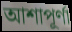
আশাপূর্ণা